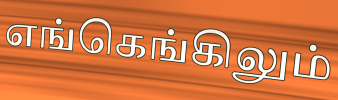
எங்கெங்கிலும்